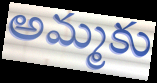
అమ్మకు